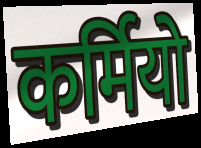
कर्मियो